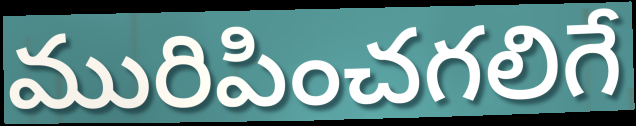
మురిపించగలిగే